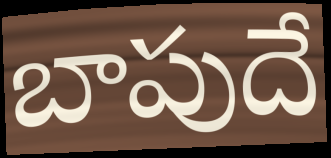
బాపుదే